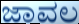
ಜಾವಲ